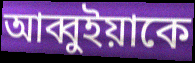
আব্বুইয়াকে